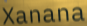
Xanana